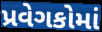
પ્રવેગકોમાં